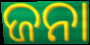
ଜନା